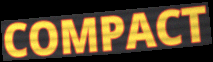
COMPACT